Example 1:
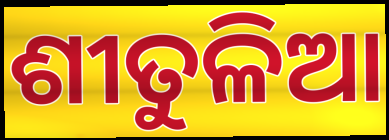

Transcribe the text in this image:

ଶୀତୁଳିଆ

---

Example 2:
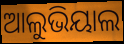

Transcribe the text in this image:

ଆଲୁଭିୟାଲ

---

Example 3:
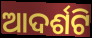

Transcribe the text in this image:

ଆଦର୍ଶଟି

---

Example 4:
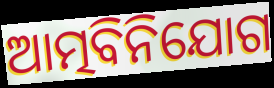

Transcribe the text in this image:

ଆତ୍ମବିନିଯୋଗ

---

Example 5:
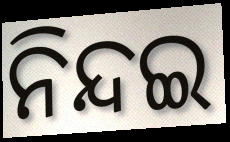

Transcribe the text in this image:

ନିନ୍ଦଇ